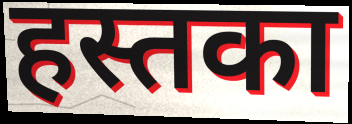
हस्तका